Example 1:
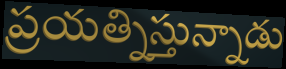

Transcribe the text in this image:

ప్రయత్నిస్తున్నాడు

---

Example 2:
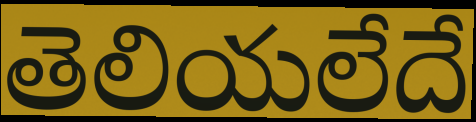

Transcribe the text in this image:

తెలియలేదే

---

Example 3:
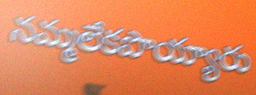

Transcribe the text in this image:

నమ్మలేకపొయ్యారు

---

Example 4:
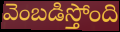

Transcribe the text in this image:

వెంబడిస్తోంది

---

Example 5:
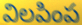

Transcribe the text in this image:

విలపింప